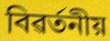
বিৱৰ্তনীয়